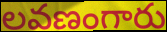
లవణంగారు